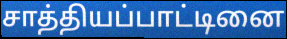
சாத்தியப்பாட்டினை